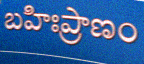
బహిఃప్రాణం